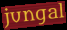
jungal